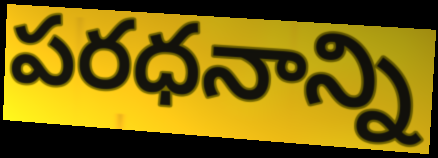
పరధనాన్ని